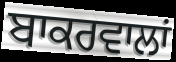
ਬਾਕਰਵਾਲਾਂ